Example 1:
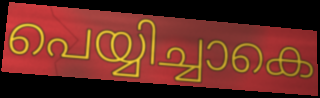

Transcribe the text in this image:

പെയ്യിച്ചാകെ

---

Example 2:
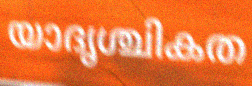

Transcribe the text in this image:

യാദൃശ്ചികത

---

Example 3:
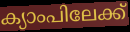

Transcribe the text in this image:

ക്യാംപിലേക്ക്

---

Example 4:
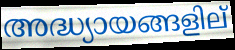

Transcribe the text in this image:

അദ്ധ്യായങ്ങളില്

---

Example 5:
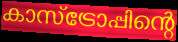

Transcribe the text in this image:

കാസ്ട്രോപ്പിന്റെ